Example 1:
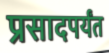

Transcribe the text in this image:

प्रसादपर्यंत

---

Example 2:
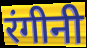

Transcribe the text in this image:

रंगीनी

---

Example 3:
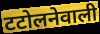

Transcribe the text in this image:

टटोलनेवाली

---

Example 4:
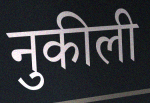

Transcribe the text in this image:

नुकीली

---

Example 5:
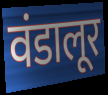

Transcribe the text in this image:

वंडालूर